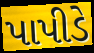
પાપીડે